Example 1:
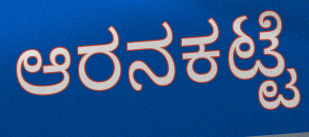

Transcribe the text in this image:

ಆರನಕಟ್ಟೆ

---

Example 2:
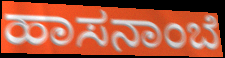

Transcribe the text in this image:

ಹಾಸನಾಂಬೆ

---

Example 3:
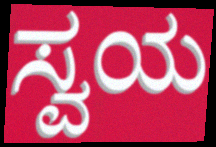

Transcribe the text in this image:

ಸ್ವಯ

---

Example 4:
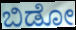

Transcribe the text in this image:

ಬಿಡೋ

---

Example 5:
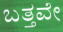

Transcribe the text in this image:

ಬತ್ತವೇ